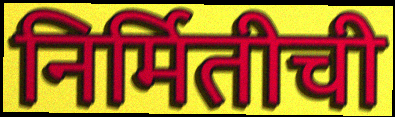
निर्मितीची